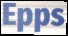
Epps